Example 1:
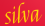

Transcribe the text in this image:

silva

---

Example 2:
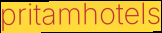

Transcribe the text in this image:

pritamhotels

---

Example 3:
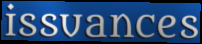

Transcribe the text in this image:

issuances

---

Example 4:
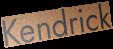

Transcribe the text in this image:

Kendrick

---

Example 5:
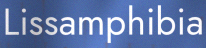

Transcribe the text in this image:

Lissamphibia